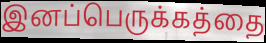
இனப்பெருக்கத்தை